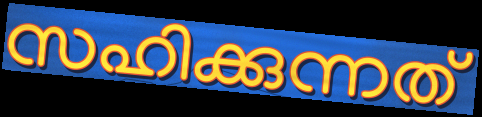
സഹിക്കുന്നത്